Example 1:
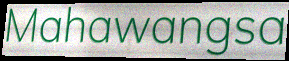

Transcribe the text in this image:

Mahawangsa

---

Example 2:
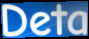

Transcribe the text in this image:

Deta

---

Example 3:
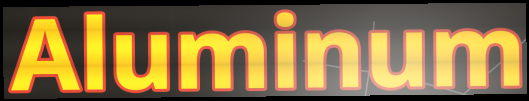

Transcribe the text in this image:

Aluminum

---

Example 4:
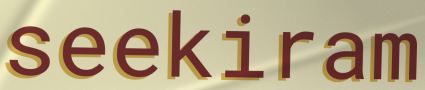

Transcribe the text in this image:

seekiram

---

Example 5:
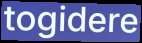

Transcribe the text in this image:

togidere